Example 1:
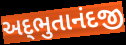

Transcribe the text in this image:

અદ્‌ભુતાનંદજી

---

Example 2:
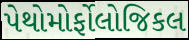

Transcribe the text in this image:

પેથોમોર્ફોલોજિકલ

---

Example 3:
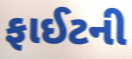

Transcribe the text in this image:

ફાઈટની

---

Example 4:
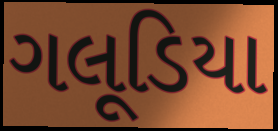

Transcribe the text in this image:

ગલૂડિયા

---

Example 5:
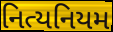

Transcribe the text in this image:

નિત્યનિયમ